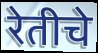
रेतीचे